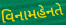
વિનામહેનતે